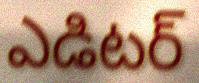
ఎడిటర్